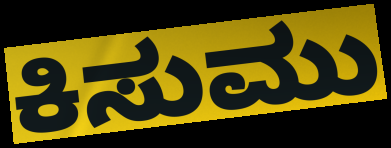
ಕಿಸುಮು